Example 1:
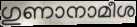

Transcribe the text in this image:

ഗുണാനാമീശ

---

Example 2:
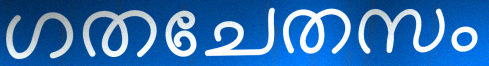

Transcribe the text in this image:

ഗതചേതസം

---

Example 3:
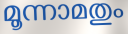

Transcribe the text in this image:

മൂന്നാമതും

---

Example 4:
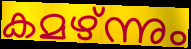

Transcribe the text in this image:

കമഴ്ന്നും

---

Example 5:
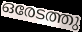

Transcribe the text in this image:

ഒരേടത്തു